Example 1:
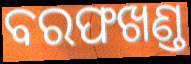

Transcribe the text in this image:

ବରଫଖଣ୍ଡ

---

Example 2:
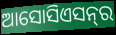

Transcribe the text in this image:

ଆସୋସିଏସନ୍‍ର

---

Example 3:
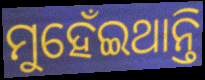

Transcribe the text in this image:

ମୁହେଁଇଥାନ୍ତି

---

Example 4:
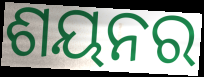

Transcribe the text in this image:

ଶୟନର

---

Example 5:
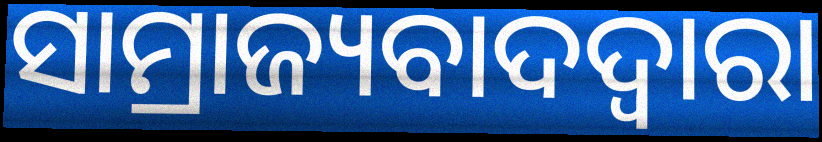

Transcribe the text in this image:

ସାମ୍ରାଜ୍ୟବାଦଦ୍ୱାରା